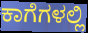
ಕಾಗೆಗಳಲ್ಲಿ